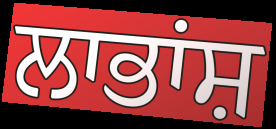
ਲਾਭਾਂਸ਼